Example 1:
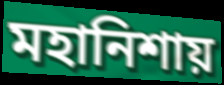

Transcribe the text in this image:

মহানিশায়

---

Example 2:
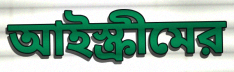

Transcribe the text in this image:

আইস্ক্রীমের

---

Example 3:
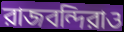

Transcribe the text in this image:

রাজবন্দিরাও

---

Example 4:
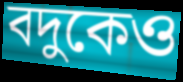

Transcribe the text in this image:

বদুকেও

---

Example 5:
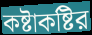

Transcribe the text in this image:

কষ্টাকষ্টির